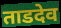
ताडदेव